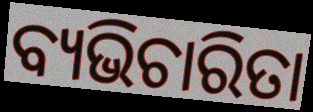
ବ୍ୟଭିଚାରିତା